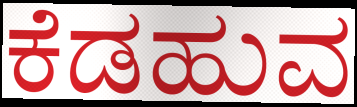
ಕೆಡಹುವ